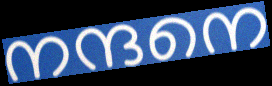
നന്ദനെ